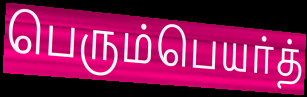
பெரும்பெயர்த்